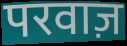
परवाज़